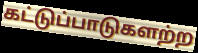
கட்டுப்பாடுகளற்ற